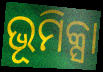
ଭୂମିକ୍ସା